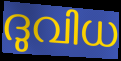
ദുവിധ